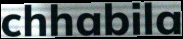
chhabila